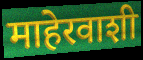
माहेरवाशी